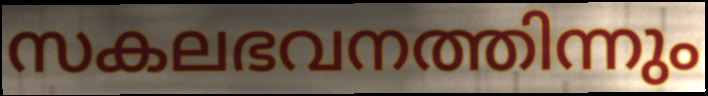
സകലഭവനത്തിന്നും